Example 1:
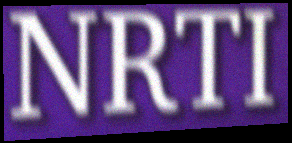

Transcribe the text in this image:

NRTI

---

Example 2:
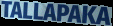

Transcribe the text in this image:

TALLAPAKA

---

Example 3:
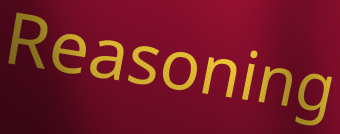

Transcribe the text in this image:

Reasoning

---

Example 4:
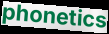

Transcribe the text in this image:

phonetics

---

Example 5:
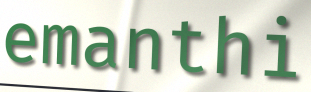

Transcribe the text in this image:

emanthi